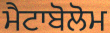
ਮੈਟਾਬੋਲੋਮ